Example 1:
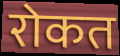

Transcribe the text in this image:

रोकत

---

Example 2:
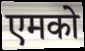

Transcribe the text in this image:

एमको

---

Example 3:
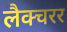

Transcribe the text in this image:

लैक्चरर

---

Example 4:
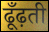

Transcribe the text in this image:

ढूँढ़ती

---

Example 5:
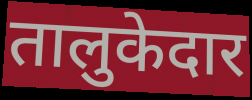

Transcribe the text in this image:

तालुकेदार